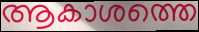
ആകാശത്തെ